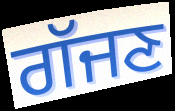
ਗੱਜਣ